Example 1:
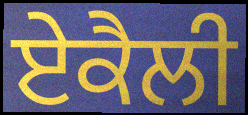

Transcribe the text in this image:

ਏਕੈਲੀ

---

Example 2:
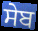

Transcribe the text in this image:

ਸੇਬ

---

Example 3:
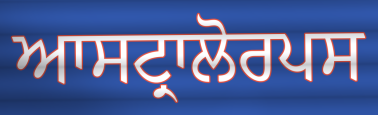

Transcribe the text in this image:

ਆਸਟ੍ਰਾਲੋਰਪਸ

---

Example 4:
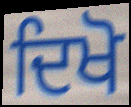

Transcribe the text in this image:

ਦਿਖੋ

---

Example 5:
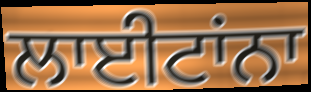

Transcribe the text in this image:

ਲਾਈਟਾਂਨਾ